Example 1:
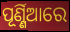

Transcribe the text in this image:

ପୂର୍ଣ୍ଣିଆରେ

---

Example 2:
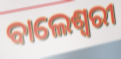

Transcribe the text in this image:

ବାଲେଶ୍ଵରୀ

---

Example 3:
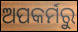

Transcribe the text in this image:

ଅପକର୍ମରୁ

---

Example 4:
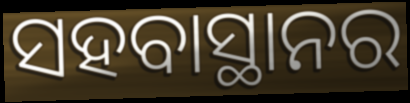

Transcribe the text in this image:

ସହବାସ୍ଥାନର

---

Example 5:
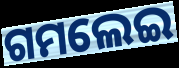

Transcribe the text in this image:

ଗମଲେଇ